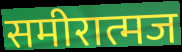
समीरात्मज